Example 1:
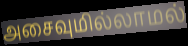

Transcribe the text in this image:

அசைவுமில்லாமல்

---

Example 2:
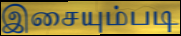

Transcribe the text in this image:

இசையும்படி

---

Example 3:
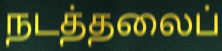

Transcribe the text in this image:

நடத்தலைப்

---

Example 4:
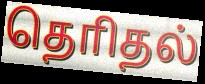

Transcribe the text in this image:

தெரிதல்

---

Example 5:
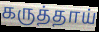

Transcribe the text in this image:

கருத்தாய்